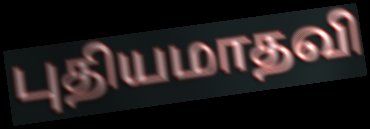
புதியமாதவி